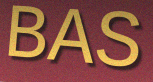
BAS